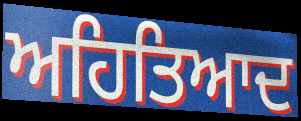
ਅਹਿਤਿਆਦ